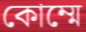
কোম্মে